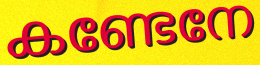
കണ്ടേനേ